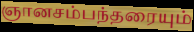
ஞானசம்பந்தரையும்